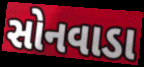
સોનવાડા